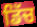
ਡਿੱਚ